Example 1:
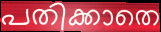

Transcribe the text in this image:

പതിക്കാതെ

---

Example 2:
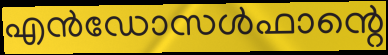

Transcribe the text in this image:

എൻഡോസൾഫാന്റെ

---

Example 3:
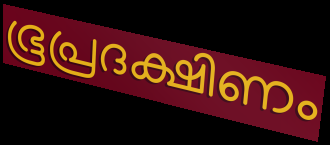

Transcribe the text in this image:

ഭൂപ്രദക്ഷിണം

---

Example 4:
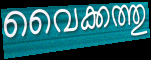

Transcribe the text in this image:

വൈക്കത്തു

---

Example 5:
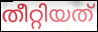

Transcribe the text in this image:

തീറ്റിയത്